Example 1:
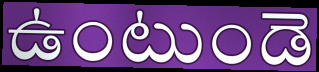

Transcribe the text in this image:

ఉంటుండె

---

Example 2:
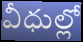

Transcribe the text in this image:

వీధుల్లో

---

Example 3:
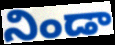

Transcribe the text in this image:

నిండా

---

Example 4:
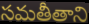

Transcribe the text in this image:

సమతీతాని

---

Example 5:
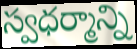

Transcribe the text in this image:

స్వధర్మాన్ని